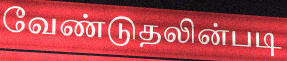
வேண்டுதலின்படி